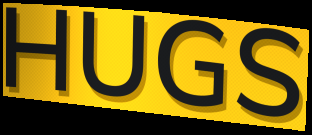
HUGS